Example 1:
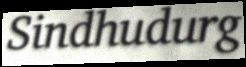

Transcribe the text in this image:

Sindhudurg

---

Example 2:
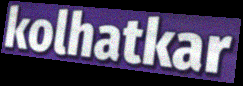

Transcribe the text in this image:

kolhatkar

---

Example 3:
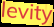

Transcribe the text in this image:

levity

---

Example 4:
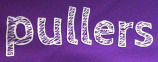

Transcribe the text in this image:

pullers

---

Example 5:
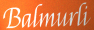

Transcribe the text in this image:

Balmurli